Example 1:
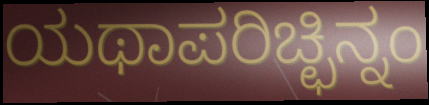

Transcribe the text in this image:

ಯಥಾಪರಿಚ್ಛಿನ್ನಂ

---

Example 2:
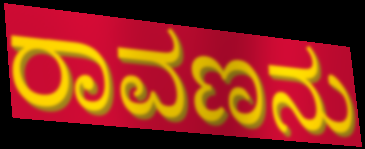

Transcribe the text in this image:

ರಾವಣನು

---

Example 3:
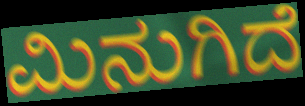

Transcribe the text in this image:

ಮಿನುಗಿದೆ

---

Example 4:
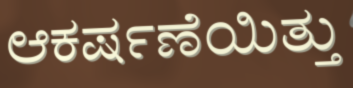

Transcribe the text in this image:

ಆಕರ್ಷಣೆಯಿತ್ತು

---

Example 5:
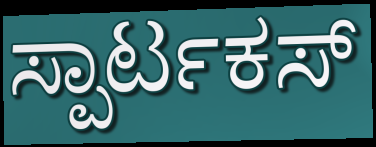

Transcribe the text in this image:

ಸ್ಪಾರ್ಟಕಸ್